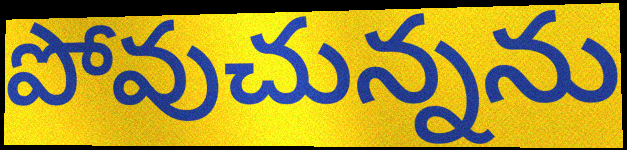
పోవుచున్నను